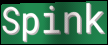
Spink